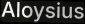
Aloysius